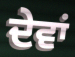
ਦੇਵਾਂ